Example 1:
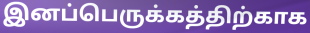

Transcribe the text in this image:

இனப்பெருக்கத்திற்காக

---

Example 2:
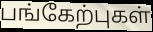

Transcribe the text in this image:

பங்கேற்புகள்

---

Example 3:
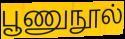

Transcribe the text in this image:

பூணுநூல்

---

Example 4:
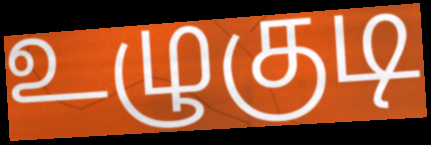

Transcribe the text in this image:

உழுகுடி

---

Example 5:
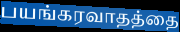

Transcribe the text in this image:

பயங்கரவாதத்தை